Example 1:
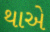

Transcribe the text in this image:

થાએ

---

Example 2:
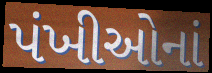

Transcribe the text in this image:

પંખીઓનાં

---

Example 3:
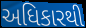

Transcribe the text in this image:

અધિકારથી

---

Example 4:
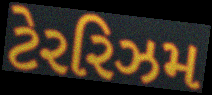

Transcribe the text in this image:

ટેરરિઝમ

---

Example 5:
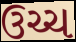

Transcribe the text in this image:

ઉચ્ચ